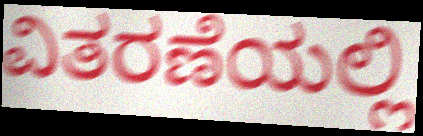
ವಿತರಣೆಯಲ್ಲಿ